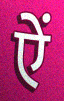
ऐं